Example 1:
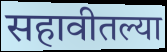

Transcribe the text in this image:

सहावीतल्या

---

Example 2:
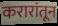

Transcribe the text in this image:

करारांतून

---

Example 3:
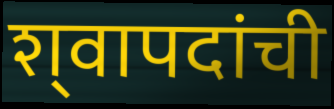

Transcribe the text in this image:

श्वापदांची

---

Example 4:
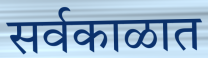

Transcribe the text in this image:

सर्वकाळात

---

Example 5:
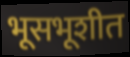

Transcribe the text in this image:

भूसभूशीत